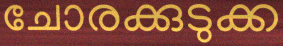
ചോരക്കുടുക്ക